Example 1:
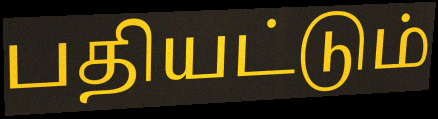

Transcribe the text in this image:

பதியட்டும்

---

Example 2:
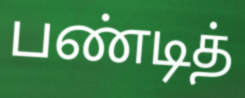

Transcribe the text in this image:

பண்டித்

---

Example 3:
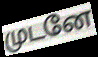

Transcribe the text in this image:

முடனே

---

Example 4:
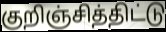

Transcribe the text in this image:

குறிஞ்சித்திட்டு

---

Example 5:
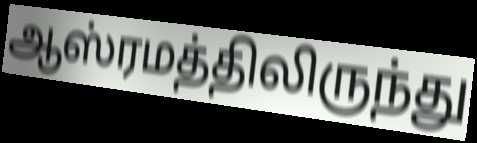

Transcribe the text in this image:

ஆஸ்ரமத்திலிருந்து